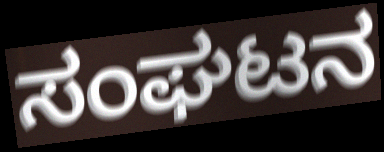
ಸಂಘಟನ